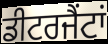
ਡੀਟਰਜੈਂਟਾਂ